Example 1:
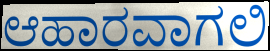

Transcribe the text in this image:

ಆಹಾರವಾಗಲಿ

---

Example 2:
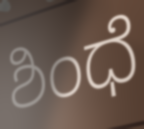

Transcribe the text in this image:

ಶಿಂಧೆ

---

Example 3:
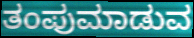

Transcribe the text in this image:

ತಂಪುಮಾಡುವ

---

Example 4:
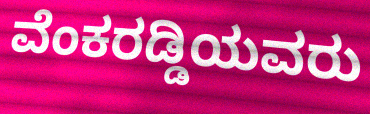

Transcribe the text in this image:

ವೆಂಕರಡ್ಡಿಯವರು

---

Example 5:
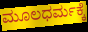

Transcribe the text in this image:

ಮೂಲಧರ್ಮಕ್ಕೆ